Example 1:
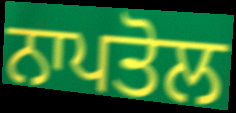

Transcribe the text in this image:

ਨਾਪਤੋਲ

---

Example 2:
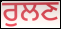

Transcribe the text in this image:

ਰੁਲਣ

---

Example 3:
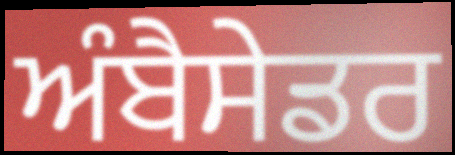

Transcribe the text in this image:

ਅੰਬੈਸੇਡਰ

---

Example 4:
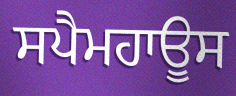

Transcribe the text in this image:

ਸਪੈਮਹਾਊਸ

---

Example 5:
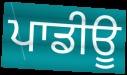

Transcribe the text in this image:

ਪਾਡੀਊ